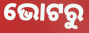
ଭୋଟରୁ